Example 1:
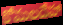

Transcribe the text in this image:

కోమలదేహా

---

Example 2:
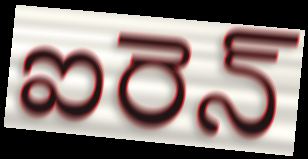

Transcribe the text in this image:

ఐరెన్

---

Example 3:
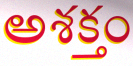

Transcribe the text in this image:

అశక్తం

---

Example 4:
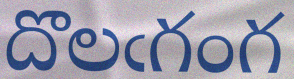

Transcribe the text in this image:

దొలఁగంగ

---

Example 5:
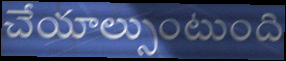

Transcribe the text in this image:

చేయాల్సుంటుంది